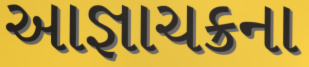
આજ્ઞાચક્રના